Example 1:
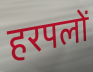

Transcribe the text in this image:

हरपलों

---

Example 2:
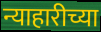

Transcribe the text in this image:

न्याहारीच्या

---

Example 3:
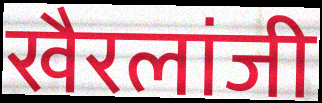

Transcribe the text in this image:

खैरलांजी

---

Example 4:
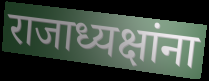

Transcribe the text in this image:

राजाध्यक्षांना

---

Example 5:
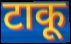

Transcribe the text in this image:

टाकू